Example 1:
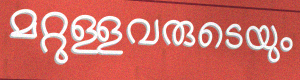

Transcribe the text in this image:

മറ്റുള്ളവരുടെയും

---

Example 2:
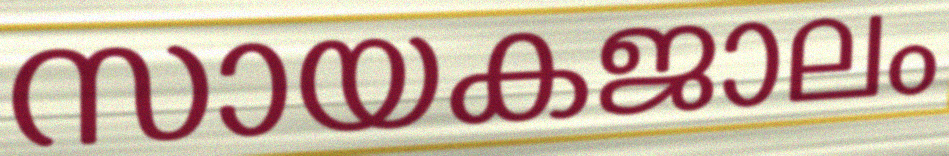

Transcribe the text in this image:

സായകജാലം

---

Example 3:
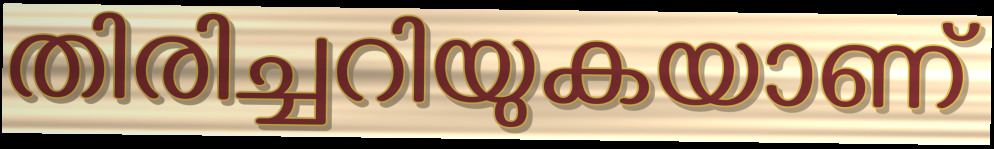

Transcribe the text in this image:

തിരിച്ചറിയുകയാണ്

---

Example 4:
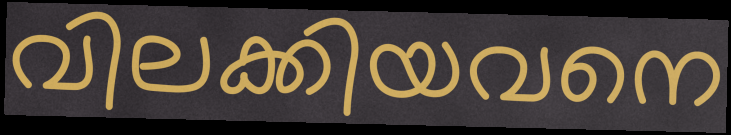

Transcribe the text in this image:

വിലക്കിയവനെ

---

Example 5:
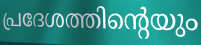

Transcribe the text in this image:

പ്രദേശത്തിന്റെയും